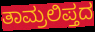
ತಾಮ್ರಲಿಪ್ತದ